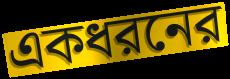
একধরনের